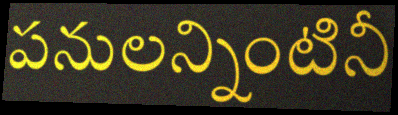
పనులన్నింటినీ